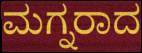
ಮಗ್ನರಾದ